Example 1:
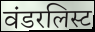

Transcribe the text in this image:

वंडरलिस्ट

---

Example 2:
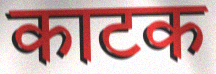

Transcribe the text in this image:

काटक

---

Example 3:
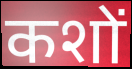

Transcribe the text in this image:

कशों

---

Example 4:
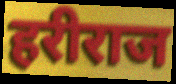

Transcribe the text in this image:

हरीराज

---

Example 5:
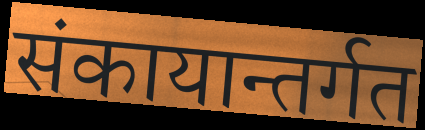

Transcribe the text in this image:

संकायान्तर्गत